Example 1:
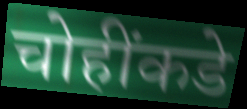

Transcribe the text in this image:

चोहींकडे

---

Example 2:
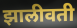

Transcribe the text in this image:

झालीवती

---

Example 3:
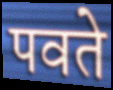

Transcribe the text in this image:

पवते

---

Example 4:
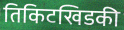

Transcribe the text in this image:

तिकिटखिडकी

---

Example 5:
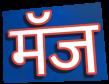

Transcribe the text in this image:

मॅज